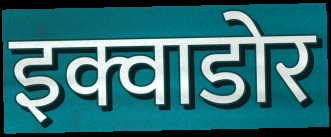
इक्‍वाडोर